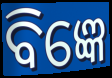
ବିଜ୍ଞେ